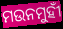
ମଉନମୁହୀଁ